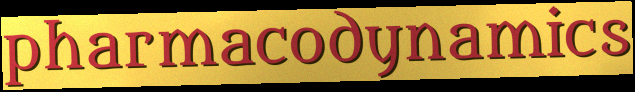
pharmacodynamics